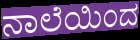
ನಾಲೆಯಿಂದ